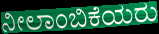
ನೀಲಾಂಬಿಕೆಯರು